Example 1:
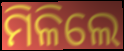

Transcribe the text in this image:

ମିଳିଲେ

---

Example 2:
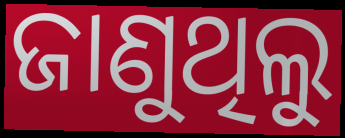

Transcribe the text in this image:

ଜାଣୁଥିଲୁ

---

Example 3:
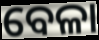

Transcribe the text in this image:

ବେଳା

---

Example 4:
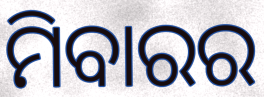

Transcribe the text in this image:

ମିବାରର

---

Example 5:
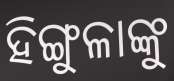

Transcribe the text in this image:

ହିଙ୍ଗୁଳାଙ୍କୁ